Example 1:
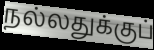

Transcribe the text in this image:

நல்லதுக்குப்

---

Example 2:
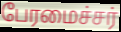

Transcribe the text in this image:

பேரமைச்சர்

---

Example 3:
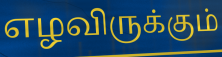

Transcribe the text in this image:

எழவிருக்கும்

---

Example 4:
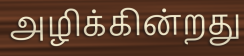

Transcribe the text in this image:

அழிக்கின்றது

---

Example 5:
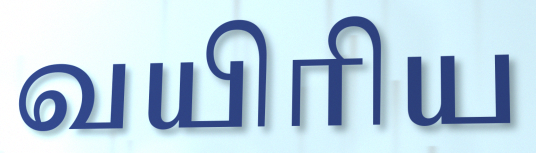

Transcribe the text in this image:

வயிரிய